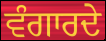
ਵੰਗਾਰਦੇ